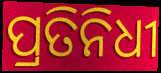
ପ୍ରତିନିଧୀ